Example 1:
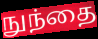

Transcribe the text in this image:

நுந்தை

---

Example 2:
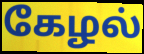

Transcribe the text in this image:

கேழல்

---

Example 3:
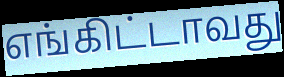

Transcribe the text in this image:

எங்கிட்டாவது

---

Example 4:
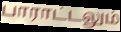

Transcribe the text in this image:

பாராட்டலும்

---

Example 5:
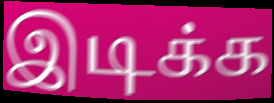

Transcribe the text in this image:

இடிக்க